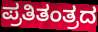
ಪ್ರತಿತಂತ್ರದ